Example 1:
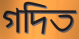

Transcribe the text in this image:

গদিত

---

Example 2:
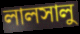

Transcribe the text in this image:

লালসালু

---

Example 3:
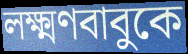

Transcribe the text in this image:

লক্ষ্মণবাবুকে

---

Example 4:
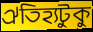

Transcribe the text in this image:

ঐতিহ্যটুকু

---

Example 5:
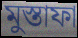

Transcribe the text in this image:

মুস্তাফা